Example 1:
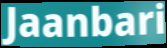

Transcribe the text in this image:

Jaanbari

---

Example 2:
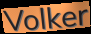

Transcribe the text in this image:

Volker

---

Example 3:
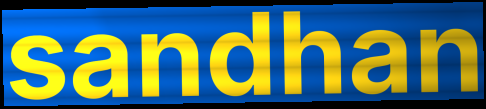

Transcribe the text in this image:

sandhan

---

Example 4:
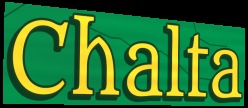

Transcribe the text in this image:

Chalta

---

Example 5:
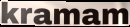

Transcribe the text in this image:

kramam